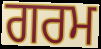
ਗਰਮ